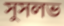
সুসলভ